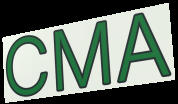
CMA